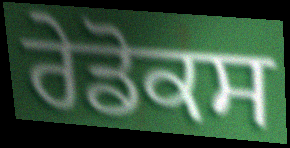
ਰੇਡੋਕਸ